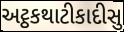
અટ્ઠકથાટીકાદીસુ